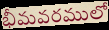
భీమవరములో